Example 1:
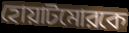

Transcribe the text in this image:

হোয়াটমোরকে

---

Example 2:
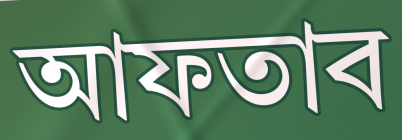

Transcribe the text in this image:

আফতাব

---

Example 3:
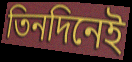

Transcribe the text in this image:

তিনদিনেই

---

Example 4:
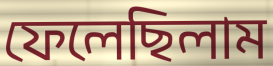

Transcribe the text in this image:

ফেলেছিলাম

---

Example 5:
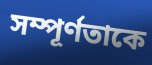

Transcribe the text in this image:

সম্পূর্ণতাকে